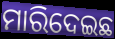
ମାରିଦେଇଛ